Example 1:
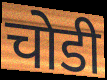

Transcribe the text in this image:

चोडी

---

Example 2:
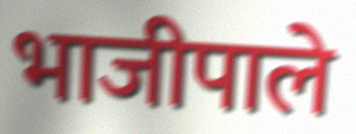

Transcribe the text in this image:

भाजीपाले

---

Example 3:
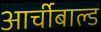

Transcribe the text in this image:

आर्चीबाल्ड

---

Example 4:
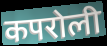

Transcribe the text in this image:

कपरोली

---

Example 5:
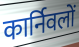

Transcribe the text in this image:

कार्निवलों